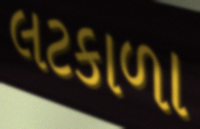
લટકાળા